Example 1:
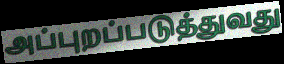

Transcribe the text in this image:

அப்புறப்படுத்துவது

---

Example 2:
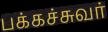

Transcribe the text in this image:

பக்கச்சுவர்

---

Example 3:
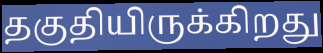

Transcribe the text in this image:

தகுதியிருக்கிறது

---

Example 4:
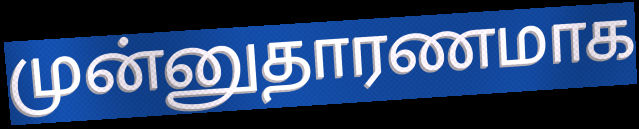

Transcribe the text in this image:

முன்னுதாரணமாக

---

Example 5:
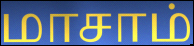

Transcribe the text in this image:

மாசாம்